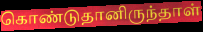
கொண்டுதானிருந்தாள்